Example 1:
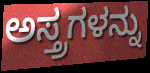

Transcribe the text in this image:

ಅಸ್ತ್ರಗಳನ್ನು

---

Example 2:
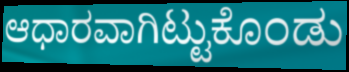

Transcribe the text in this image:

ಆಧಾರವಾಗಿಟ್ಟುಕೊಂಡು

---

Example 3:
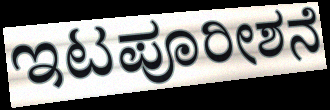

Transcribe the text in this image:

ಇಟಪೂರೀಶನೆ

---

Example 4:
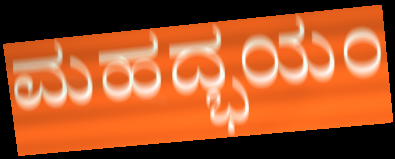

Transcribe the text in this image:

ಮಹದ್ಭಯಂ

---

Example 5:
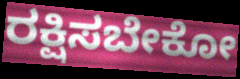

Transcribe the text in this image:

ರಕ್ಷಿಸಬೇಕೋ